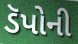
ડૅપોની